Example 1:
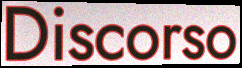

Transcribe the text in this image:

Discorso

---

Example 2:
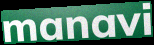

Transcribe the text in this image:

manavi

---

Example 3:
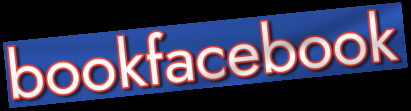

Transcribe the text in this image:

bookfacebook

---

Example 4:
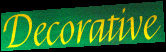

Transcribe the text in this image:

Decorative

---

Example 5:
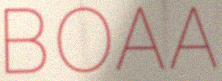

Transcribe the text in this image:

BOAA